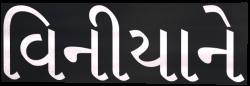
વિનીયાને